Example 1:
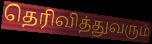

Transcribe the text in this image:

தெரிவித்துவரும்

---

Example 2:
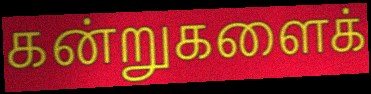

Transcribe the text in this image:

கன்றுகளைக்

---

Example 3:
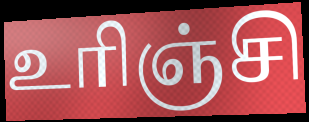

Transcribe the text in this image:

உரிஞ்சி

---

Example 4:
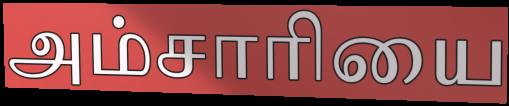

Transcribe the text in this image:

அம்சாரியை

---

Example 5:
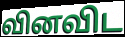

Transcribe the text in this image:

வினவிட